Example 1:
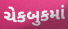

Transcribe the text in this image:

ચેકબુકમાં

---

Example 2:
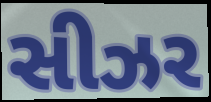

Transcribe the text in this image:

સીઝર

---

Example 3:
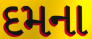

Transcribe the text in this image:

દમના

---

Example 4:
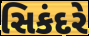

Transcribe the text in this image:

સિકંદરે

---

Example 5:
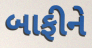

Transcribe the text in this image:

બાફીને